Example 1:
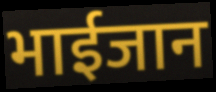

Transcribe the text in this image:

भाईजान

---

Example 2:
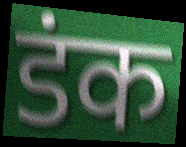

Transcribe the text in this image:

डंक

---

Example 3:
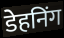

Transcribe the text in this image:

डेहनिंग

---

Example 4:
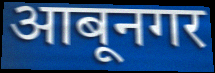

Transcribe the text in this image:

आबूनगर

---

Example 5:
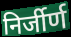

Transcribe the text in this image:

निर्जीर्ण